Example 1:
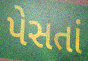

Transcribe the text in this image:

પેસતાં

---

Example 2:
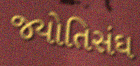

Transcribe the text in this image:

જ્યોતિસંઘ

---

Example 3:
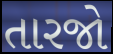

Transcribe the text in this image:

તારજો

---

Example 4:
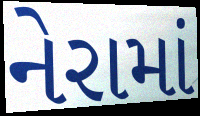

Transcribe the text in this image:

નેરામાં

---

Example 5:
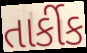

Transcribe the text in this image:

તાર્કીક